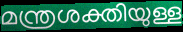
മന്ത്രശക്തിയുള്ള